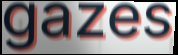
gazes